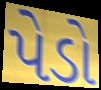
પેડો